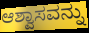
ಆಶ್ವಾಸವನ್ನು